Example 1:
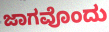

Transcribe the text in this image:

ಜಾಗವೊಂದು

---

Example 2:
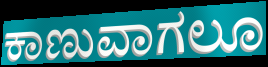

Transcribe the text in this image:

ಕಾಣುವಾಗಲೂ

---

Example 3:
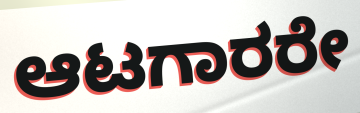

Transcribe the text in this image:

ಆಟಗಾರರೇ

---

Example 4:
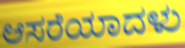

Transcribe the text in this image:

ಆಸರೆಯಾದಳು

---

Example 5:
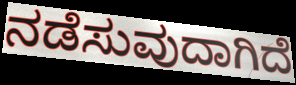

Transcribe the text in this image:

ನಡೆಸುವುದಾಗಿದೆ